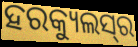
ହରକ୍ୟୁଲସ୍‍ର